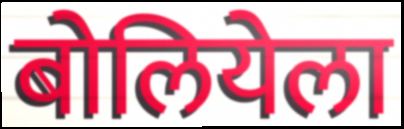
बोलियेला